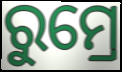
ରୁମ୍ରେ